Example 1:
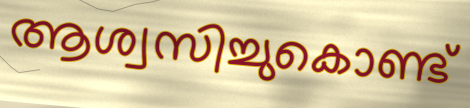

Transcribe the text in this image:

ആശ്വസിച്ചുകൊണ്ട്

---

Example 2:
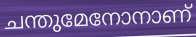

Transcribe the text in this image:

ചന്തുമേനോനാണ്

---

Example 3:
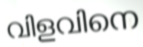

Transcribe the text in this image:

വിളവിനെ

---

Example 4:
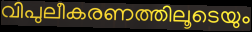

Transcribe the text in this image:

വിപുലീകരണത്തിലൂടെയും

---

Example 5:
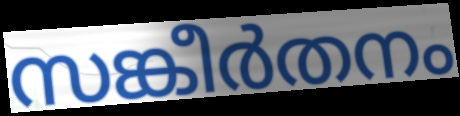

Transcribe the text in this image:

സങ്കീർതനം